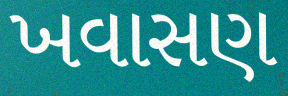
ખવાસણ